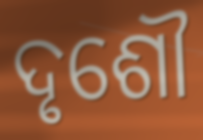
ଦୃଶୌ